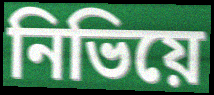
নিভিয়ে